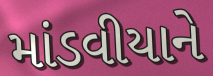
માંડવીયાને